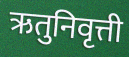
ऋतुनिवृत्ती